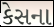
કેસના